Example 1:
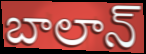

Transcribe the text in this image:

బాలాన్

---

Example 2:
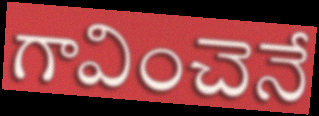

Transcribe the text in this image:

గావించెనే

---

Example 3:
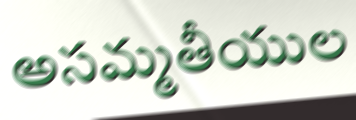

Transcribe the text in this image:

అసమ్మతీయుల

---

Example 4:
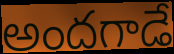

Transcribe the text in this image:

అందగాడే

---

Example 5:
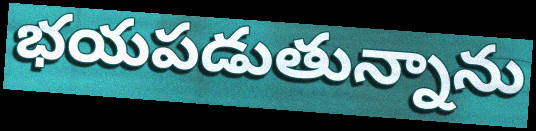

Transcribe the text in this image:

భయపడుతున్నాను